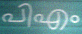
പിഎം